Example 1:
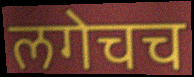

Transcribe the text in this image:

लगेचच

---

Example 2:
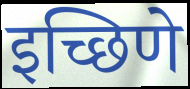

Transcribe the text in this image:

इच्छिणे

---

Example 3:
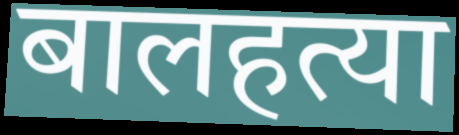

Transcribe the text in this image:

बालहत्या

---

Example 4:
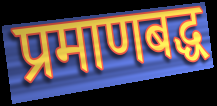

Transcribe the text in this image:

प्रमाणबद्ध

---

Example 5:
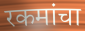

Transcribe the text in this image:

रकमांचा